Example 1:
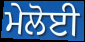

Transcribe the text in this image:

ਮੇਲੋਈ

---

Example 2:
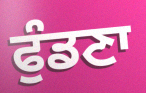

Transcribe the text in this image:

ਫੁੰਡਣਾ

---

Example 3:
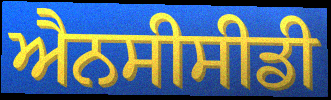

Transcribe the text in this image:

ਐਨਸੀਸੀਡੀ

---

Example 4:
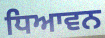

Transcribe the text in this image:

ਧਿਆਵਨ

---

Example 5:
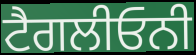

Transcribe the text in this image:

ਟੈਗਲੀਓਨੀ